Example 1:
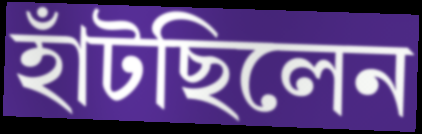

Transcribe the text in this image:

হাঁটছিলেন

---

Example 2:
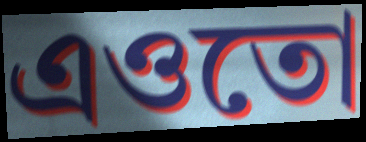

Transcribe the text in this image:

এওতো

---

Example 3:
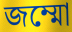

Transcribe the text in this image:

জম্মো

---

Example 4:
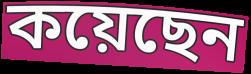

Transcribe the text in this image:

কয়েছেন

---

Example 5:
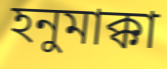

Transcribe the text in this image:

হনুমাক্কা